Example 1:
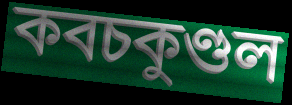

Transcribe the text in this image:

কবচকুণ্ডল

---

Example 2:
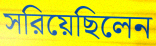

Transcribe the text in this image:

সরিয়েছিলেন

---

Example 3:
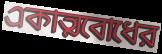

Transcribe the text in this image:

একাত্মবোধের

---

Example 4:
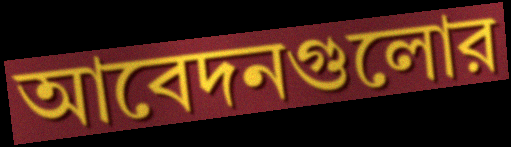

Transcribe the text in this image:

আবেদনগুলোর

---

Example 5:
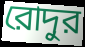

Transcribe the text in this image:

রোদুর